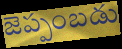
జెప్పంబడు